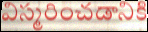
విస్మరించడానికి